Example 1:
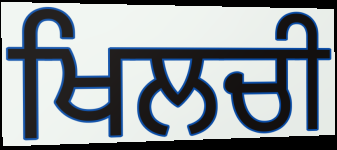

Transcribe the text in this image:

ਖਿਲਚੀ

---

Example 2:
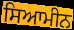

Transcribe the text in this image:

ਸਿਆਮੀਨ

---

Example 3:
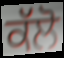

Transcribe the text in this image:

ਕੱਲੋ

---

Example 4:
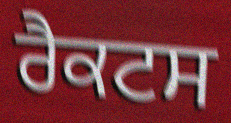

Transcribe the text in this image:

ਰੈਕਟਸ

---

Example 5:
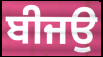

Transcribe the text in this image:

ਬੀਜਉ